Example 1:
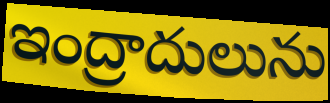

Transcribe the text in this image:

ఇంద్రాదులును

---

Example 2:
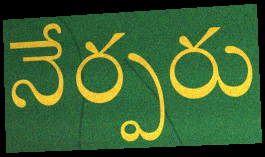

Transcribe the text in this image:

నేర్పరు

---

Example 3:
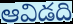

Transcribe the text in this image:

ఆవిడది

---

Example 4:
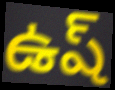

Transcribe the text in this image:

ఉష్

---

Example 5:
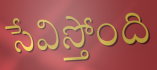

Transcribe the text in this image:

సేవిస్తోంది